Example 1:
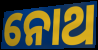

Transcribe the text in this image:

ନୋଥ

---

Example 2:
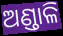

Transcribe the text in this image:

ଅଣ୍ଡାଳି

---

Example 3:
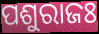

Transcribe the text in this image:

ପଶୁରାଜଃ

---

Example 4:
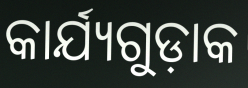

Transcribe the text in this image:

କାର୍ଯ୍ୟଗୁଡ଼ାକ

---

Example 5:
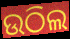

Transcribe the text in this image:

ଉଠିଲ